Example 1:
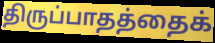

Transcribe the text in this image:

திருப்பாதத்தைக்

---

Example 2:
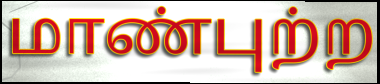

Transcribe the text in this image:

மாண்புற்ற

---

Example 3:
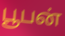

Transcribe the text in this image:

பூபன்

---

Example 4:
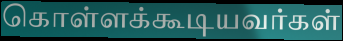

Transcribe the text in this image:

கொள்ளக்கூடியவர்கள்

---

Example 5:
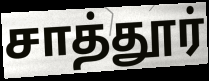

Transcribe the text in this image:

சாத்தூர்